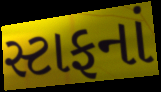
સ્ટાફનાં